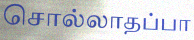
சொல்லாதப்பா